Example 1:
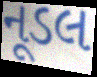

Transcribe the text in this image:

નૂડલ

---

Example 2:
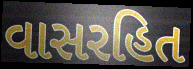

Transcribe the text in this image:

વાસરહિત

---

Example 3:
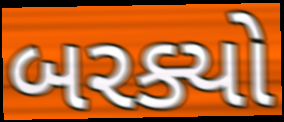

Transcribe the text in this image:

બરક્યો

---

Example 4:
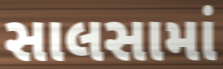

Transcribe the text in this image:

સાલસામાં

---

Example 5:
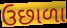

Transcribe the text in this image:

ઉછાળા